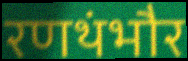
रणथंभौर